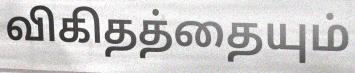
விகிதத்தையும்